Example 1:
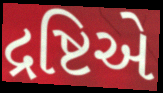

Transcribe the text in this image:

દ્રષ્ટિએ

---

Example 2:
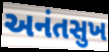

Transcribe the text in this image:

અનંતસુખ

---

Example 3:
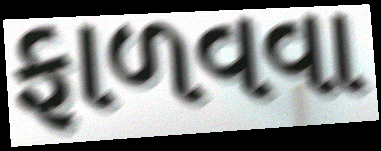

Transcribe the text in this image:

ફાળવવા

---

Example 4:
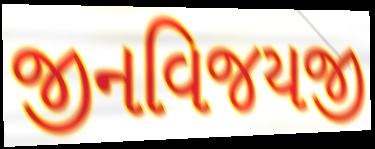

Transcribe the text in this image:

જીનવિજયજી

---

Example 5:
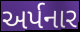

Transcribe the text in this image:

અર્પનાર